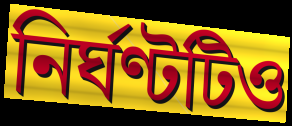
নির্ঘণ্টটিও